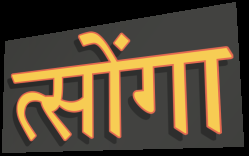
त्सोंगा